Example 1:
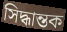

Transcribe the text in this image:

সিদ্ধান্তক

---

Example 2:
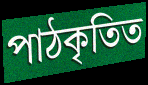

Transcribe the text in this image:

পাঠকৃতিত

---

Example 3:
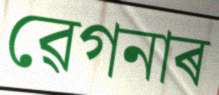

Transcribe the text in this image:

ৱেগনাৰ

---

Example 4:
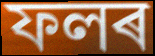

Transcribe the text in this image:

ফলৰ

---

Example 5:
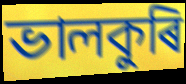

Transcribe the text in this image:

ভালকুৰি